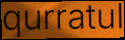
qurratul